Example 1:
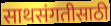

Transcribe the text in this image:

साथसंगतीसाठी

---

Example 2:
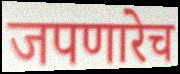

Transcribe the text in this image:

जपणारेच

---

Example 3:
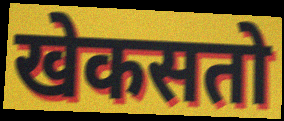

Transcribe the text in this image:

खेकसतो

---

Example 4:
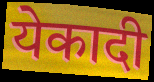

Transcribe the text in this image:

येकादी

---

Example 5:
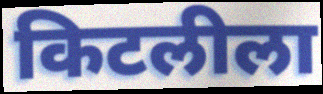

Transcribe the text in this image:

किटलीला